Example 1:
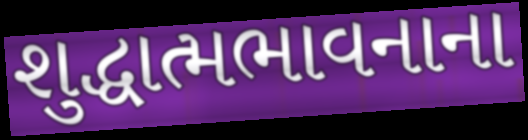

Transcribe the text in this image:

શુદ્ધાત્મભાવનાના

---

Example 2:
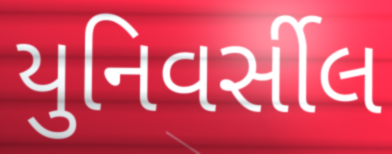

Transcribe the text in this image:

યુનિવર્સીલ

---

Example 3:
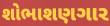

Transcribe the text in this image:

શોભાશણગાર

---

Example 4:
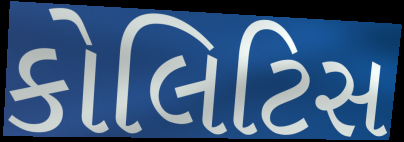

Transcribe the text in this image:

કોલિટિસ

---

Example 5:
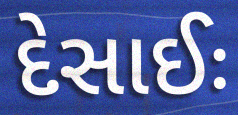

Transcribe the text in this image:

દેસાઈઃ